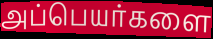
அப்பெயர்களை